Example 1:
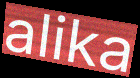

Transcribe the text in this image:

alika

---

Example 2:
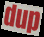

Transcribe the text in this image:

dup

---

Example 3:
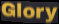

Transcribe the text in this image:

Glory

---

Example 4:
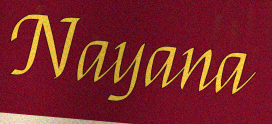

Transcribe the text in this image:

Nayana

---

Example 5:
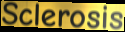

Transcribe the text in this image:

Sclerosis